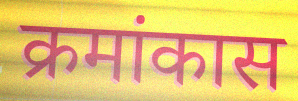
क्रमांकास